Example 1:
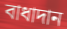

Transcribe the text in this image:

বাধাদান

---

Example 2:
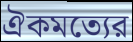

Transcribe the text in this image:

ঐকমত্যের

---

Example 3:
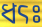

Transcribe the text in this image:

ধৎঃ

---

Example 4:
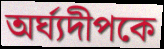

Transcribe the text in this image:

অর্ঘ্যদীপকে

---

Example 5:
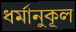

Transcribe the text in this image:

ধর্মানুকূল